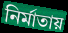
নির্মাতায়